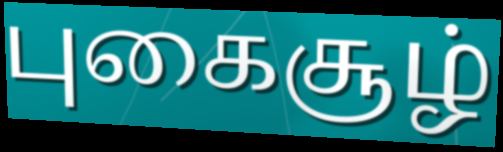
புகைசூழ்